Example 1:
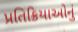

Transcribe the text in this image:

પ્રતિક્રિયાઓનું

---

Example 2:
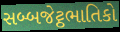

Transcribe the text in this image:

સબ્બજેટ્ઠભાતિકો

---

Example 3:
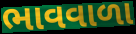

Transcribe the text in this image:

ભાવવાળા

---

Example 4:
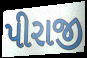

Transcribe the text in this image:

પીરાજી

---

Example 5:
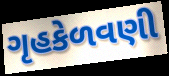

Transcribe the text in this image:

ગૃહકેળવણી